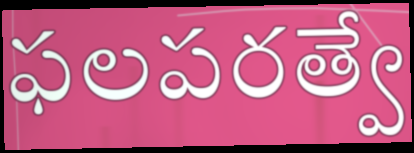
ఫలపరత్వే